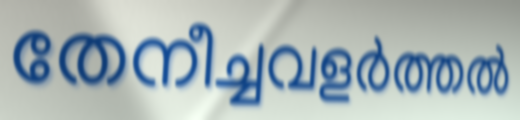
തേനീച്ചവളർത്തൽ